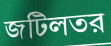
জটিলতর